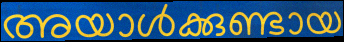
അയാൾക്കുണ്ടായ